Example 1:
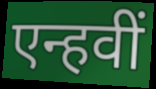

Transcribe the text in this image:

एन्हवीं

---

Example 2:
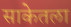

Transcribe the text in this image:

साकेतला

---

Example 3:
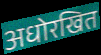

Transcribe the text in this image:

अधोरखित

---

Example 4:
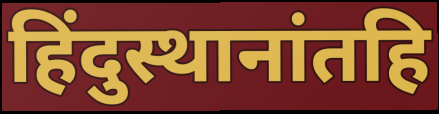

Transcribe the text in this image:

हिंदुस्थानांतहि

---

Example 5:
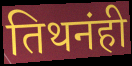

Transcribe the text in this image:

तिथनंही